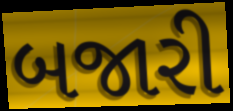
બજારી